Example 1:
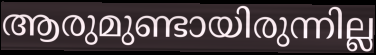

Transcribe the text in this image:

ആരുമുണ്ടായിരുന്നില്ല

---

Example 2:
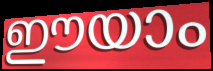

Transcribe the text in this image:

ഈയാം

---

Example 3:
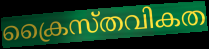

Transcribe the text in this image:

ക്രൈസ്തവികത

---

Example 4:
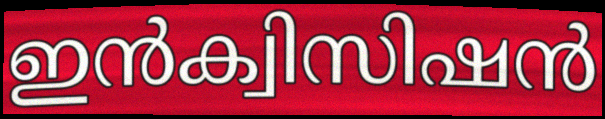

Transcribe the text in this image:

ഇൻക്വിസിഷൻ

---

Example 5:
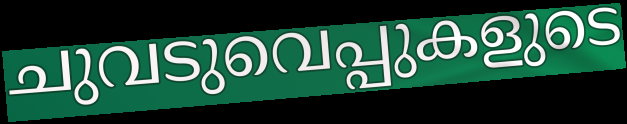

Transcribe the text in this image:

ചുവടുവെപ്പുകളുടെ